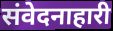
संवेदनाहारी